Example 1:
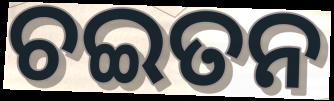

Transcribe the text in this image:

ଚଇତନ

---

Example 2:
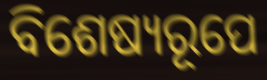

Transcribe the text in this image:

ବିଶେଷ୍ୟରୂପେ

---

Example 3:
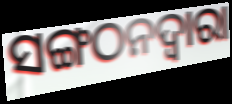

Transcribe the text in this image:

ସଙ୍ଗଠନଦ୍ୱାରା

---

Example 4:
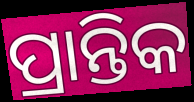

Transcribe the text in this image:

ପ୍ରାନ୍ତିକ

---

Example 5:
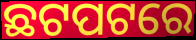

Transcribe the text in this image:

ଛଟପଟରେ